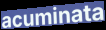
acuminata